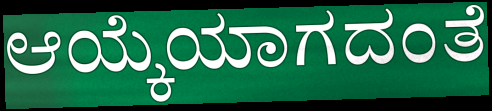
ಆಯ್ಕೆಯಾಗದಂತೆ